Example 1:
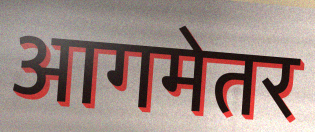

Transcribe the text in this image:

आगमेतर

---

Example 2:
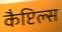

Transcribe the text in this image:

कैप्टिल्स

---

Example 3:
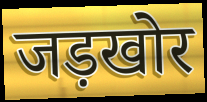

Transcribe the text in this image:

जड़खोर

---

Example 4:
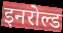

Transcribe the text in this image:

इनरोल्ड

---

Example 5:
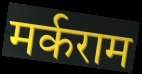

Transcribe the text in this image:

मर्कराम